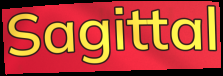
Sagittal